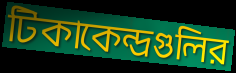
টিকাকেন্দ্রগুলির